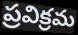
ప్రవిక్రమ